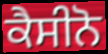
ਕੈਸੀਨੋ